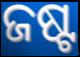
ଜଷ୍ଟ